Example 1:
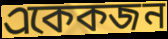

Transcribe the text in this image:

একেকজন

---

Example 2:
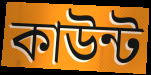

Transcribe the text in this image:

কাউন্ট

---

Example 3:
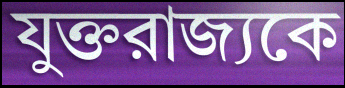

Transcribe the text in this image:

যুক্তরাজ্যকে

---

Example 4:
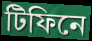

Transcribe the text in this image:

টিফিনে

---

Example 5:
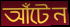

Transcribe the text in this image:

আঁটেন